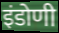
इंडोणी